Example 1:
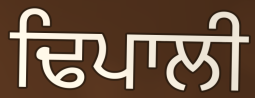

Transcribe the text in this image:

ਢਿਪਾਲੀ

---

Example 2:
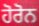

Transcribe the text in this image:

ਹੋਰੋਨ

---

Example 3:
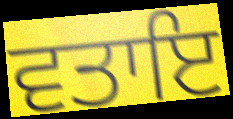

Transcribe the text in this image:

ਵਤਾਇ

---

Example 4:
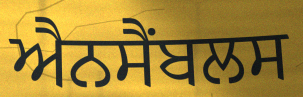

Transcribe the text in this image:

ਐਨਸੈਂਬਲਸ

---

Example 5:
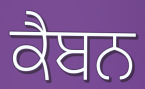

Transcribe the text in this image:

ਕੈਬਨ